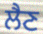
ਲੈਣ